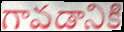
గావడానికి